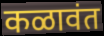
कळावंत